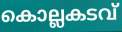
കൊല്ലകടവ്